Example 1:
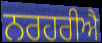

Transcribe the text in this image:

ਨਰਹਰੀਐ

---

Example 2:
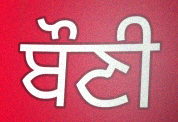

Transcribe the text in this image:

ਬੌਣੀ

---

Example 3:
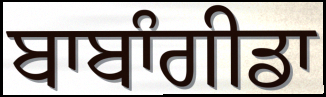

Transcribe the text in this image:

ਬਾਬਾੰਗੀਡਾ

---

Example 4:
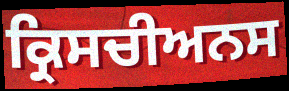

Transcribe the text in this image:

ਕ੍ਰਿਸਚੀਅਨਸ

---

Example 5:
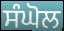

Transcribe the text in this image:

ਸੰਘੋਲ